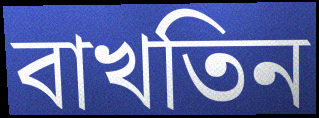
বাখতিন